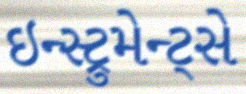
ઇન્સ્ટ્રુમેન્ટ્સે